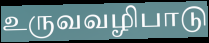
உருவவழிபாடு